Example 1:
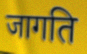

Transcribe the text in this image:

जागति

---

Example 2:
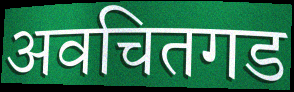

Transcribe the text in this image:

अवचितगड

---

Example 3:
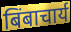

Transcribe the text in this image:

बिंबाचार्य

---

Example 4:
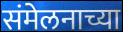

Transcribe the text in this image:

संमेलनाच्या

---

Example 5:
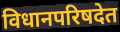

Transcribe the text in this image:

विधानपरिषदेत